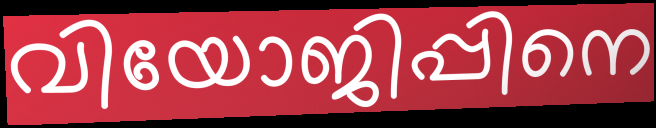
വിയോജിപ്പിനെ